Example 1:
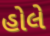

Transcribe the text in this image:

હોલે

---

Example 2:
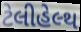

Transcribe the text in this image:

ટેલીહેલ્થ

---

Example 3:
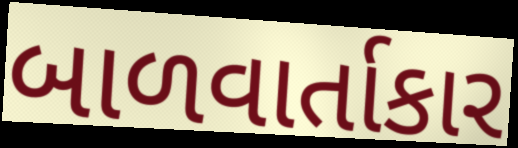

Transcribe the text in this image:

બાળવાર્તાકાર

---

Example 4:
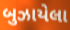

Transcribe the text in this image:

બુઝાયેલા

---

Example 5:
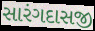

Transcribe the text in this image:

સારંગદાસજી